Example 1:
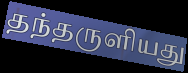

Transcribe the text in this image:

தந்தருளியது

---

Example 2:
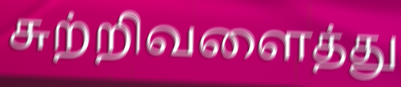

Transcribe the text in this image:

சுற்றிவளைத்து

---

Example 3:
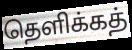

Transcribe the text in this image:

தெளிக்கத்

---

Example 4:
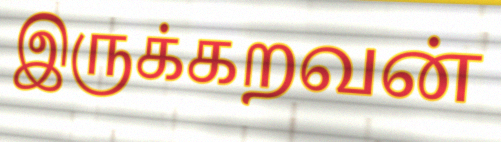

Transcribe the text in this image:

இருக்கறவன்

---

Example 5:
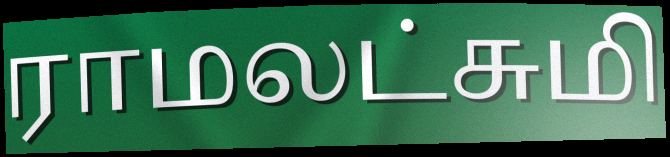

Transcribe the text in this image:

ராமலட்சுமி